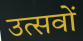
उत्सवों